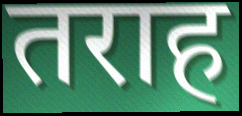
तराह